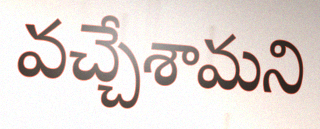
వచ్చేశామని